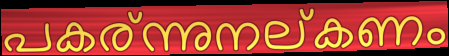
പകര്ന്നുനല്കണം